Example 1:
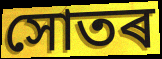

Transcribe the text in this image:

সোতৰ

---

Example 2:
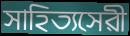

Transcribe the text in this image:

সাহিত্যসেৱী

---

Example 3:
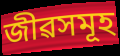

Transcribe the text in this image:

জীৱসমূহ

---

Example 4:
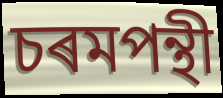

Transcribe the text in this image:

চৰমপন্থী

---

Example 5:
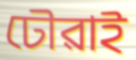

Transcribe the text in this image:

ঢৌৱাই